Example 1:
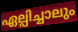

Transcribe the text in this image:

ഏല്പിച്ചാലും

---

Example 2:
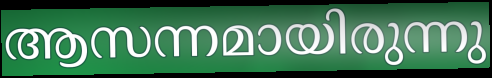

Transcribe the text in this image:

ആസന്നമായിരുന്നു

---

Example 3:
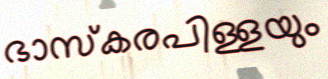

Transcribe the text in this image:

ഭാസ്കരപിള്ളയും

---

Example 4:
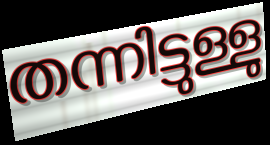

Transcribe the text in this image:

തന്നിട്ടുള്ളു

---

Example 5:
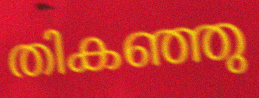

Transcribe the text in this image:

തികഞ്ഞു